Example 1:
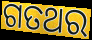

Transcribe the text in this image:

ଗତଥର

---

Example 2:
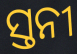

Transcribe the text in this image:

ସ୍ତନୀ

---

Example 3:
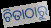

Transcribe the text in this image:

ଚିତାଠାରୁ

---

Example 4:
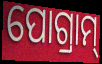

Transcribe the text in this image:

ପୋଗ୍ରାମ୍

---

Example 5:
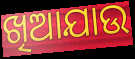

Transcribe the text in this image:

ଖିଆଯାଉ